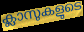
ക്ലാസുകളുടെ